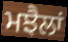
ਮਝੈਲਾਂ